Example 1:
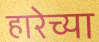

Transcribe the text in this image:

हारेच्या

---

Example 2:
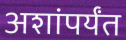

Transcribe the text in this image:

अशांपर्यंत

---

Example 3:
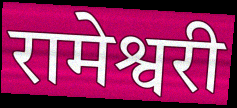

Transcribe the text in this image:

रामेश्वरी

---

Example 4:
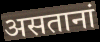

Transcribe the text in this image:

असतानां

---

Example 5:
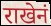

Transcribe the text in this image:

राखेनं